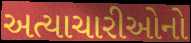
અત્યાચારીઓનો